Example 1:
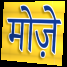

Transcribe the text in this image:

मोज़े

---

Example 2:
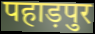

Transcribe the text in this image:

पहाड़पुर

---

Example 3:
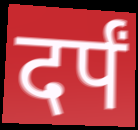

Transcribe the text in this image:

दर्पं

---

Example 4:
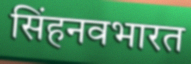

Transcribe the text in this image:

सिंहनवभारत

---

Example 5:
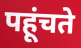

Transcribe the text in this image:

पहूंचते